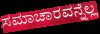
ಸಮಾಚಾರವನ್ನೆಲ್ಲ